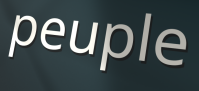
peuple